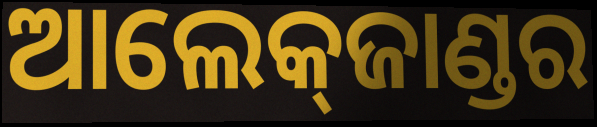
ଆଲେକ୍‌ଜାଣ୍ଡର